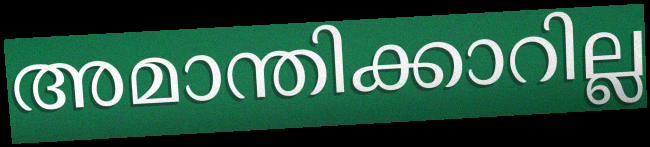
അമാന്തിക്കാറില്ല